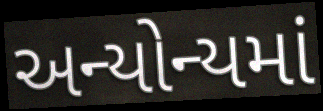
અન્યોન્યમાં